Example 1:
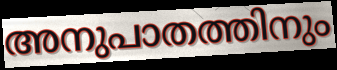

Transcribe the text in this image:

അനുപാതത്തിനും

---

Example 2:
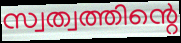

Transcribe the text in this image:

സ്വത്വത്തിന്റെ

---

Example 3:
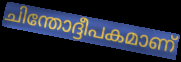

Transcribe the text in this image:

ചിന്തോദ്ദീപകമാണ്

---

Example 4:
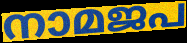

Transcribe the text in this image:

നാമജപ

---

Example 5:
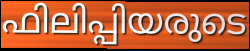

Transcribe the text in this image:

ഫിലിപ്പിയരുടെ